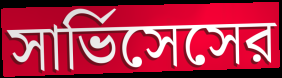
সার্ভিসেসের